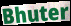
Bhuter